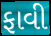
ફાવી